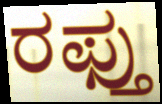
ರಫ್ತು